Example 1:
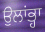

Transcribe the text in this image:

ਉਲਾਂਭ੍ਹਾ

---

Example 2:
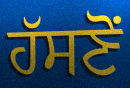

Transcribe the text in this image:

ਹੱਸਣੋਂ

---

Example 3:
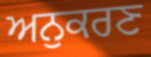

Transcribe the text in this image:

ਅਨੁਕਰਣ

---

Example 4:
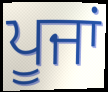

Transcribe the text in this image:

ਪੂਜਾਂ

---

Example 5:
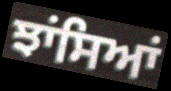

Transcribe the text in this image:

ਝਾਂਸਿਆਂ